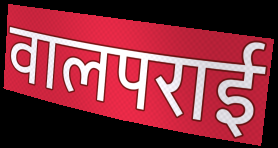
वालपराई